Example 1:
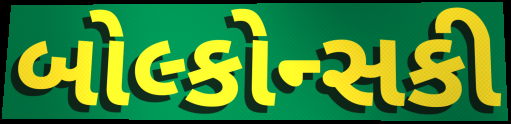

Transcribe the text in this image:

બોલ્કોન્સકી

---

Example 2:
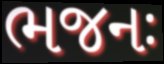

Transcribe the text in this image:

ભજનઃ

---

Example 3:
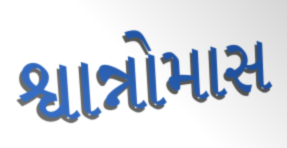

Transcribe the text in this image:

શ્વાન્નોમાસ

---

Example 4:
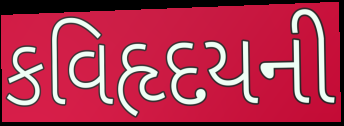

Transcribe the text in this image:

કવિહૃદયની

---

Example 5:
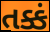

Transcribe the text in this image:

તક્કં